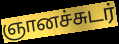
ஞானச்சுடர்